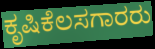
ಕೃಷಿಕೆಲಸಗಾರರು